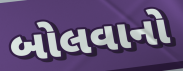
બોલવાનો